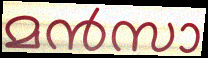
മൻസാ